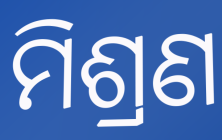
ମିଶ୍ରଣ